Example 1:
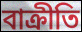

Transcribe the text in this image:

বাক্রীতি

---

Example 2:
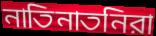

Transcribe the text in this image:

নাতিনাতনিরা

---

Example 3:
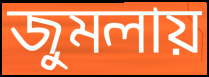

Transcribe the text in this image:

জুমলায়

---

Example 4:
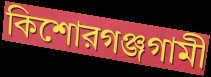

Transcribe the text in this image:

কিশোরগঞ্জগামী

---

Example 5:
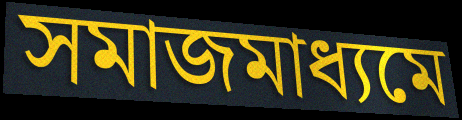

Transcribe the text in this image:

সমাজমাধ্যমে